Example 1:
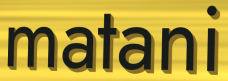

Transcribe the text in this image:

matani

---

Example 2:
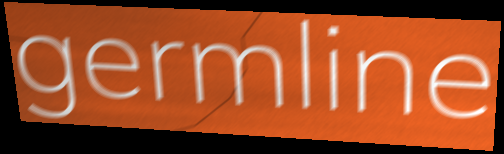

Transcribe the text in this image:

germline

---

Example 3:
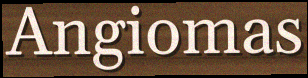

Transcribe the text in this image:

Angiomas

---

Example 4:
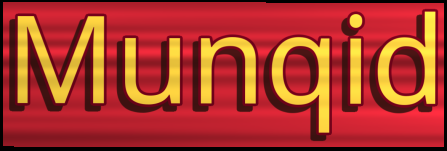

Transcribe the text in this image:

Munqid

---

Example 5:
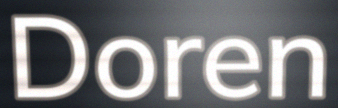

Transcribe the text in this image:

Doren